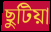
ছুটিয়া